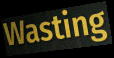
Wasting